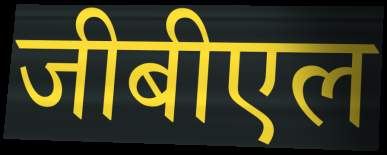
जीबीएल